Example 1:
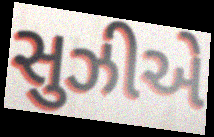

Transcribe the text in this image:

સુઝીએ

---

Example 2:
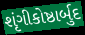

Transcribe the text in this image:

શૃંગીકોષ્ઠાર્બુદ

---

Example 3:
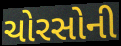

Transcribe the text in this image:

ચોરસોની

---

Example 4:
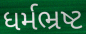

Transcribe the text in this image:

ધર્મભ્રષ્ટ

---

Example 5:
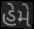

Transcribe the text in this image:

હેમે